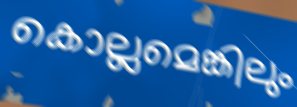
കൊല്ലമെങ്കിലും